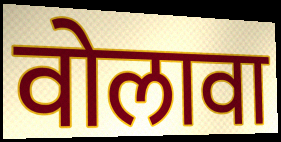
वोलावा